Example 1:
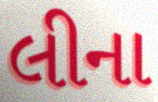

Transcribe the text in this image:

લીના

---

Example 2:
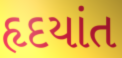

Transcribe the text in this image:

હૃદયાંત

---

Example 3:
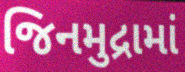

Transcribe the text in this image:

જિનમુદ્રામાં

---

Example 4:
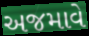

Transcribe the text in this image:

અજમાવે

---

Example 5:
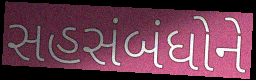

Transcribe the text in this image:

સહસંબંધોને